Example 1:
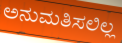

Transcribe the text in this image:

ಅನುಮತಿಸಲಿಲ್ಲ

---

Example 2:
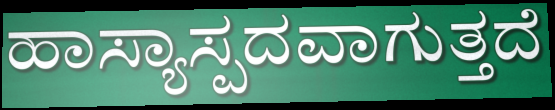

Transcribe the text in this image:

ಹಾಸ್ಯಾಸ್ಪದವಾಗುತ್ತದೆ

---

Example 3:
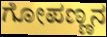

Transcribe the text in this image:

ಗೋಪಣ್ಣನ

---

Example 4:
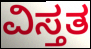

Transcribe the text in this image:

ವಿಸ್ತತ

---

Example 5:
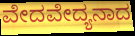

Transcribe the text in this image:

ವೇದವೇದ್ಯನಾದ